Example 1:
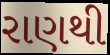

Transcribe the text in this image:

રાણથી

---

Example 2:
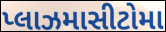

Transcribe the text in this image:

પ્લાઝમાસીટોમા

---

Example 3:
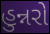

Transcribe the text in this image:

હુન્નરો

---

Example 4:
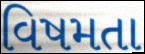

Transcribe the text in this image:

વિષમતા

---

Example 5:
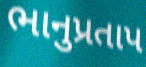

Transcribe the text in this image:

ભાનુપ્રતાપ